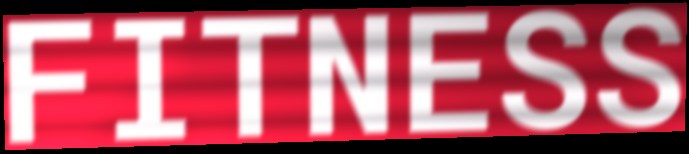
FITNESS